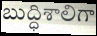
బుద్ధిశాలిగా